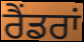
ਰੈਂਡਰਾਂ